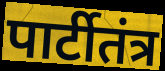
पार्टीतंत्र